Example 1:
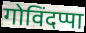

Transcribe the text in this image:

गोविंदप्पा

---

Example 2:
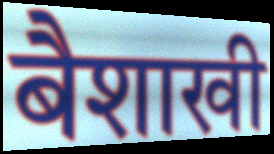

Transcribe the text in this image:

बैशाखी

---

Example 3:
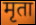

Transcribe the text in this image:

मृता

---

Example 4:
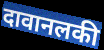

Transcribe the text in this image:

दावानलकी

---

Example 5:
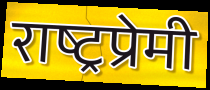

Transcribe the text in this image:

राष्ट्रप्रेमी